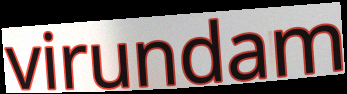
virundam